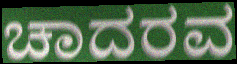
ಚಾದರವ